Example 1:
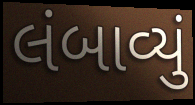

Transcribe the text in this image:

લંબાવ્યું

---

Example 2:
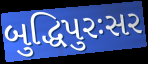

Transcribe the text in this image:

બુદ્ધિપુરઃસર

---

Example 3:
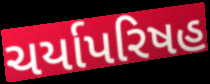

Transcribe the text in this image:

ચર્યાપરિષહ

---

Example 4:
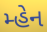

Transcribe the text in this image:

મ્હેન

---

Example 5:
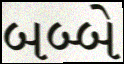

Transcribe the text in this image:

બબ્બે